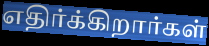
எதிர்க்கிறார்கள்